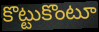
కొట్టుకొంటూ